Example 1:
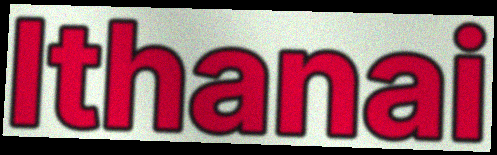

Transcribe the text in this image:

Ithanai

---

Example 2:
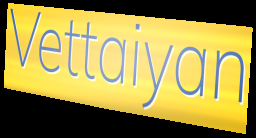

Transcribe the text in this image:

Vettaiyan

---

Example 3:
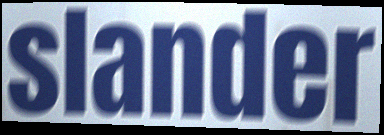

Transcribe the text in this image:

slander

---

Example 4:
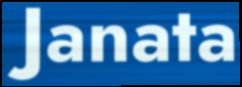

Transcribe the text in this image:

Janata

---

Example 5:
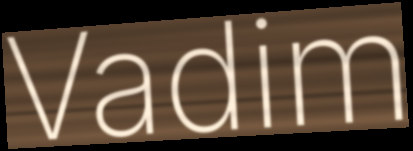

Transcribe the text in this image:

Vadim